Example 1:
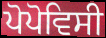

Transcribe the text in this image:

ਪੋਪੋਵਿਸੀ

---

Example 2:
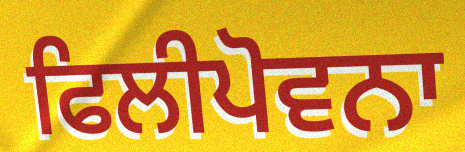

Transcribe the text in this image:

ਫਿਲੀਪੋਵਨਾ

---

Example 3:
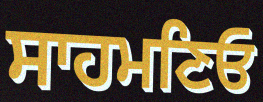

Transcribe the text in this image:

ਸਾਹਮਣਿਓ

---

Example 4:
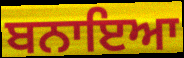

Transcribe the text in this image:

ਬਨਾਇਆ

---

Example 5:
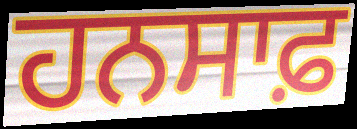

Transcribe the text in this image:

ਹਨਸਾਫ਼